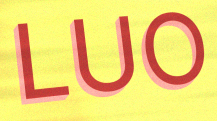
LUO